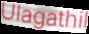
Ulagathil